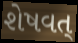
શેષવત્